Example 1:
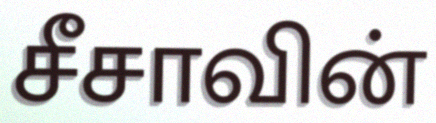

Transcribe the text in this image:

சீசாவின்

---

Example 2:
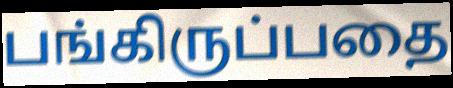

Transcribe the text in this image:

பங்கிருப்பதை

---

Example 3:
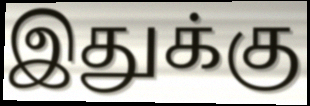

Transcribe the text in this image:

இதுக்கு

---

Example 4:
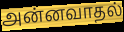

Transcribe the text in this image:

அன்னவாதல்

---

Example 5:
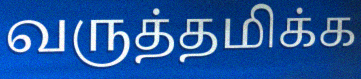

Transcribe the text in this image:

வருத்தமிக்க